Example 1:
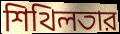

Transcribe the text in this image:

শিথিলতার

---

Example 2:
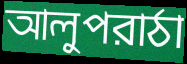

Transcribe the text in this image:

আলুপরাঠা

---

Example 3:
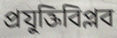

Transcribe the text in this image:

প্রযুক্তিবিপ্লব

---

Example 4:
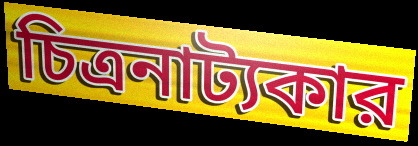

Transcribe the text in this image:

চিত্রনাট্যকার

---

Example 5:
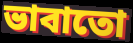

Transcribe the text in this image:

ভাবাতো